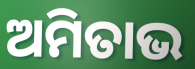
ଅମିତାଭ